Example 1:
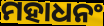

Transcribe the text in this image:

ମହାଧନଂ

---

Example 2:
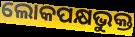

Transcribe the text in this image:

ଲୋକପକ୍ଷଭୁକ୍ତ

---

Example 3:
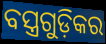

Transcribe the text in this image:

ବସ୍ତ୍ରଗୁଡ଼ିକର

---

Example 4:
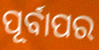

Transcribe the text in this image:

ପୂର୍ବାପର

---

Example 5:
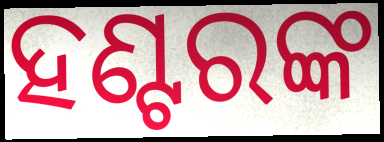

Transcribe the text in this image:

ହଣ୍ଟରଙ୍କ